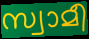
സ്വാമീ